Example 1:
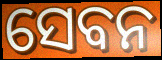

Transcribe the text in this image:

ସେବନ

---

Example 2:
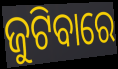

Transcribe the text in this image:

ଜୁଟିବାରେ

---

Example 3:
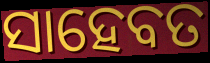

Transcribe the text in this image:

ସାହେବତ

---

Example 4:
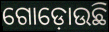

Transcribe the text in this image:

ଗୋଡ଼ୋଉଛି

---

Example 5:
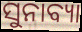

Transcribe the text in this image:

ସୁନାବ୍ୟା